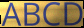
ABCD